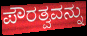
ಪೌರತ್ವವನ್ನು